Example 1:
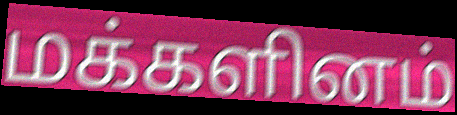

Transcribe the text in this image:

மக்களினம்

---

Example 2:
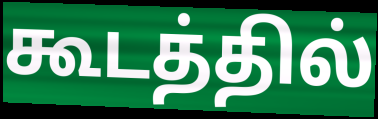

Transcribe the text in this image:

கூடத்தில்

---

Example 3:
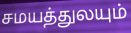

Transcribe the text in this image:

சமயத்துலயும்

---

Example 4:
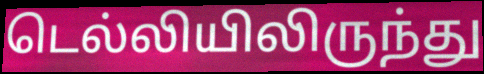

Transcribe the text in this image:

டெல்லியிலிருந்து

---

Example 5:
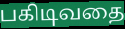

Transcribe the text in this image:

பகிடிவதை